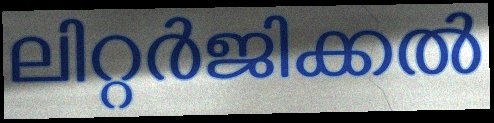
ലിറ്റർജിക്കൽ